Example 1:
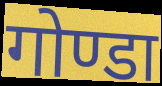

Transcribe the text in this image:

गोण्डा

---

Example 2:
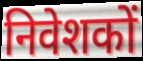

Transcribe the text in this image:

निवेशकों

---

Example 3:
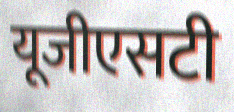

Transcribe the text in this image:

यूजीएसटी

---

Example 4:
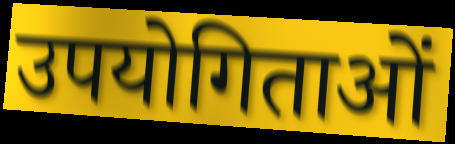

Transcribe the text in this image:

उपयोगिताओं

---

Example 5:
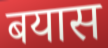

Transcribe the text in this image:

बयास